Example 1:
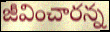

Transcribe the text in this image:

జీవించారన్న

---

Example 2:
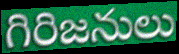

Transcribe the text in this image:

గిరిజనులు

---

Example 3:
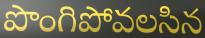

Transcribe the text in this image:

పొంగిపోవలసిన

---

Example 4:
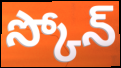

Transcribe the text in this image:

స్కోన్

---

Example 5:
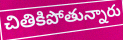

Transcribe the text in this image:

చితికిపోతున్నారు